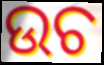
ଉଚ